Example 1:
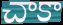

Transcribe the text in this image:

చాకా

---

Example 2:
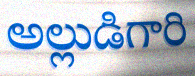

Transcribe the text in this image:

అల్లుడిగారి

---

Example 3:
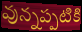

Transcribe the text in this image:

వున్నప్పటికి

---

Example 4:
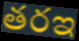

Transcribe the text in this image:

తరఇ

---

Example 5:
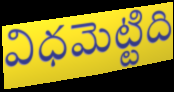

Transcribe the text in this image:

విధమెట్టిది